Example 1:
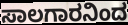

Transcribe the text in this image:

ಸಾಲಗಾರನಿಂದ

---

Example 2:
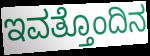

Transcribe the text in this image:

ಇವತ್ತೊಂದಿನ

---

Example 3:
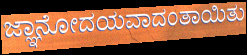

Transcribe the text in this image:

ಜ್ಞಾನೋದಯವಾದಂತಾಯಿತು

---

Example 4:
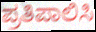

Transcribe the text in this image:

ಪ್ರತಿಪಾಲಿಸಿ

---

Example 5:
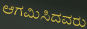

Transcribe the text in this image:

ಆಗಮಿಸಿದವರು